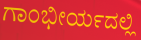
ಗಾಂಭೀರ್ಯದಲ್ಲಿ